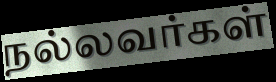
நல்லவர்கள்